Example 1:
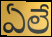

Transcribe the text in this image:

ఏలే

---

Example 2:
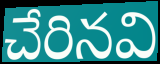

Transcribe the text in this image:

చేరినవి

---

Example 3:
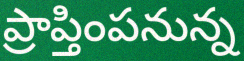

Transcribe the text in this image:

ప్రాప్తింపనున్న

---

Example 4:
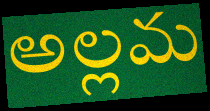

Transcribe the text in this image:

అల్లమ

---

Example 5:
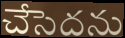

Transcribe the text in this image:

చేసెదను